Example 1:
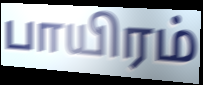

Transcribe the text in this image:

பாயிரம்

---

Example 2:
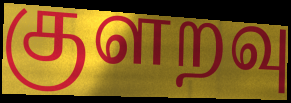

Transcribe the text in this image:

குளறவு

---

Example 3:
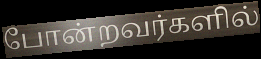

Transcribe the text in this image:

போன்றவர்களில்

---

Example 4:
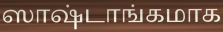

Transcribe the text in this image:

ஸாஷ்டாங்கமாக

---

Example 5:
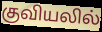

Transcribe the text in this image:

குவியலில்